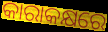
କାରାକକ୍ଷରେ